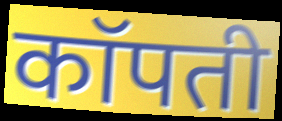
कॉपती